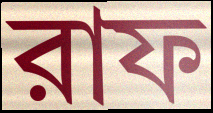
রাফ